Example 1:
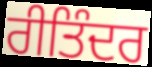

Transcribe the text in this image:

ਰੀਤਿੰਦਰ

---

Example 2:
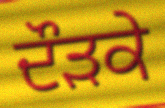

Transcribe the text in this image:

ਦੌੜਕੇ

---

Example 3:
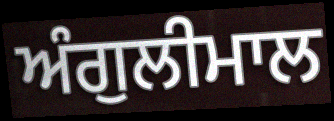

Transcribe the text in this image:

ਅੰਗੁਲੀਮਾਲ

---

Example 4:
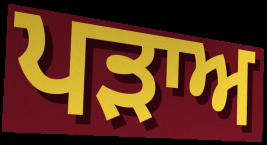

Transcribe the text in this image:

ਪਡ਼ਾਅ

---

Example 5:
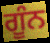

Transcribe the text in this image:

ਗੂੰਨ